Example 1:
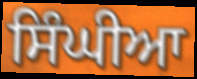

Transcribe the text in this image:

ਸਿੰਘੀਆ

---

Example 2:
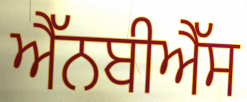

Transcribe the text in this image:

ਐੱਨਬੀਐੱਸ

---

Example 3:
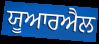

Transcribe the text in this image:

ਯੂਆਰਐਲ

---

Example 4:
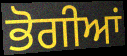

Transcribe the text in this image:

ਭੋਗੀਆਂ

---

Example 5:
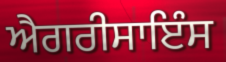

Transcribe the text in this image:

ਐਗਰੀਸਾਇੰਸ